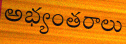
అభ్యంతరాలు